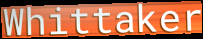
Whittaker